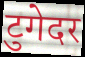
टुगेदर